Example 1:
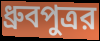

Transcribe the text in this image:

ধ্রুবপুত্রর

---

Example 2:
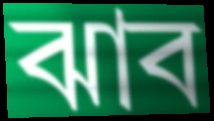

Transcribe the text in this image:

ঝাব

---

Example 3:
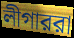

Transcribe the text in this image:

লীগাররা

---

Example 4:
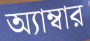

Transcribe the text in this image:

অ্যাম্বার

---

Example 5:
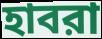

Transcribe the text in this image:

হাবরা